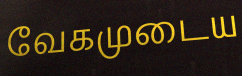
வேகமுடைய